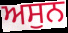
ਅਸੁਨ